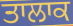
ਤਾਲਾਕ